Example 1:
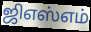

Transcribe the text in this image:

ஜிஎஸ்எம்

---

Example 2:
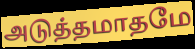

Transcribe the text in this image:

அடுத்தமாதமே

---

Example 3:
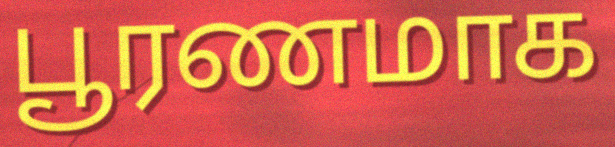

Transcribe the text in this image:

பூரணமாக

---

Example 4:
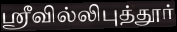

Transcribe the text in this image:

ஸ்ரீவில்லிபுத்தூர்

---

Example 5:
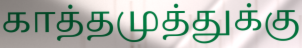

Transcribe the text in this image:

காத்தமுத்துக்கு